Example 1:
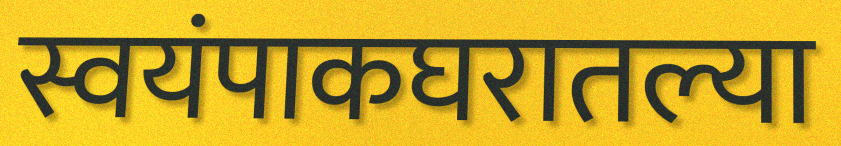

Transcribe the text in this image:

स्वयंपाकघरातल्या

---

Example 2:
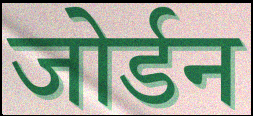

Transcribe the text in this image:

जोर्डन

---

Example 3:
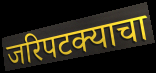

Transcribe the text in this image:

जरिपटक्याचा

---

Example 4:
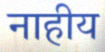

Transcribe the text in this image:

नाहीय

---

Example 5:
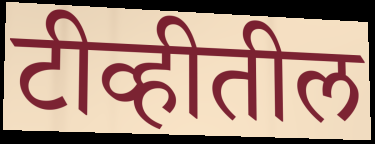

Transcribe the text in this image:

टीव्हीतील